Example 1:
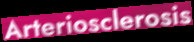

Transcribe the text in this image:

Arteriosclerosis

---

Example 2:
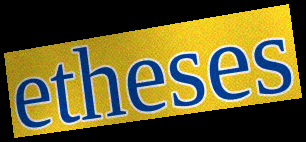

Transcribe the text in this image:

etheses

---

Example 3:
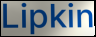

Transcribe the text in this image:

Lipkin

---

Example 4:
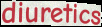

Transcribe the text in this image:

diuretics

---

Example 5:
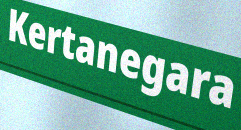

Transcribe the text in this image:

Kertanegara